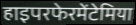
हाइपरफेरमेंटेमिया